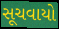
સૂચવાયો